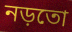
নড়তো